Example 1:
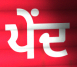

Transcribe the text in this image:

ਪੇਂਦ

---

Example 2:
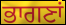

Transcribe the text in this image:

ਭਾਗਣਾਂ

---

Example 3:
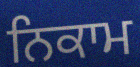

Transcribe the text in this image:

ਨਿਕਾਮ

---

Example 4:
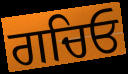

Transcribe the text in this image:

ਗਚਿਓ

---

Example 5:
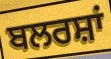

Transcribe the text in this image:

ਬਲਰਸ਼ਾਂ